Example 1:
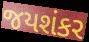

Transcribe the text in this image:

જયશંકર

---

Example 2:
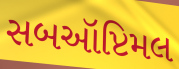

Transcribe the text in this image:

સબઑપ્ટિમલ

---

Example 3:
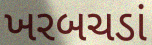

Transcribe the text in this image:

ખરબચડાં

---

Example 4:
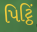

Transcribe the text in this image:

પિટ્ઠિં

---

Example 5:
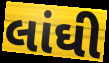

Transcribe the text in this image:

લાંઘી